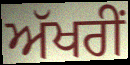
ਅੱਖਰੀਂ